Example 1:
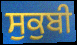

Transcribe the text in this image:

ਸੁਕੁਬੀ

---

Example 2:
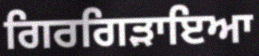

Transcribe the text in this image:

ਗਿਰਗਿੜਾਇਆ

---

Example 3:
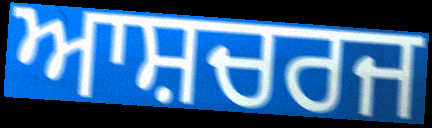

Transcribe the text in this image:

ਆਸ਼ਚਰਜ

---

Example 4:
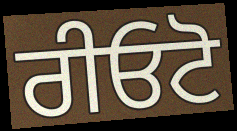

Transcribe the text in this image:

ਰੀਓਟੋ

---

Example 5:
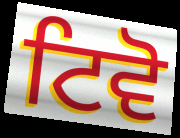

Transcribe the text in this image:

ਟਿਵੋ